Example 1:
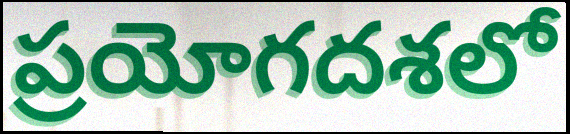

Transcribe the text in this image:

ప్రయోగదశలో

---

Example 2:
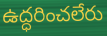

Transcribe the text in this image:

ఉద్ధరించలేరు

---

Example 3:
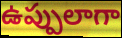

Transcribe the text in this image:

ఉప్పులాగా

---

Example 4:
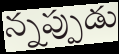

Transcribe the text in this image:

న్నప్పుడు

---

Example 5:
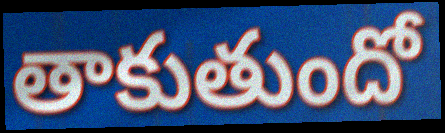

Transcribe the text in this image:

తాకుతుందో